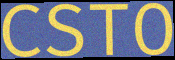
CSTO